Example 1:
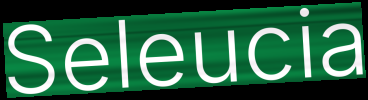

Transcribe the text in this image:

Seleucia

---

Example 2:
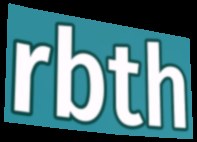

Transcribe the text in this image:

rbth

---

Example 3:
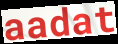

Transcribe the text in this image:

aadat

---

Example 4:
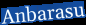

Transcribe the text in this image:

Anbarasu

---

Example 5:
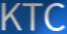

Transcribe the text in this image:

KTC